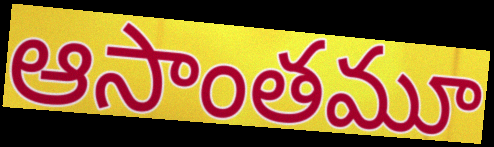
ఆసాంతమూ